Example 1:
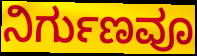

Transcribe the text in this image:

ನಿರ್ಗುಣವೂ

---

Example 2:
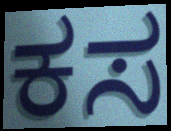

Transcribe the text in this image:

ಕಸ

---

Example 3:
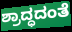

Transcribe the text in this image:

ಶ್ರಾದ್ಧದಂತೆ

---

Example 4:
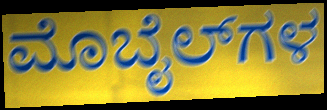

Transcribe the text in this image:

ಮೊಬೈಲ್‌ಗಳ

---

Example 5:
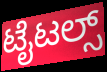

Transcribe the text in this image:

ಟೈಟಲ್ಸ್